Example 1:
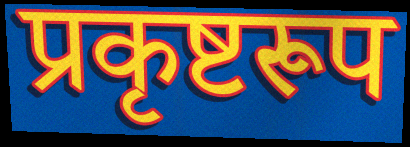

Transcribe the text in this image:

प्रकृष्टरूप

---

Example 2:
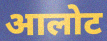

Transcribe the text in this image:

आलोट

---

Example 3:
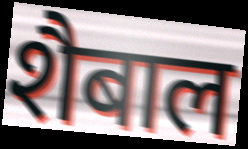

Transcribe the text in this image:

शैबाल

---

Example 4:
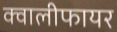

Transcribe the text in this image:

क्‍वालीफायर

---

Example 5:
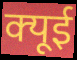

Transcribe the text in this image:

क्यूई